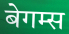
बेगम्स